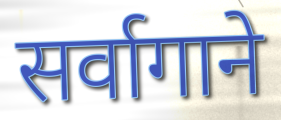
सर्वागाने